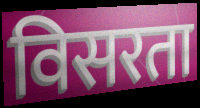
विसरता